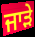
ਜਾੜੇ